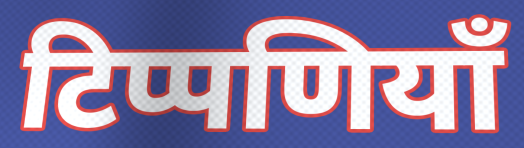
टिप्पणियाँ